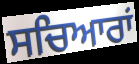
ਸਚਿਆਰਾਂ